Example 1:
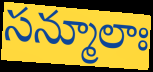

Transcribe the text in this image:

సన్మూలాః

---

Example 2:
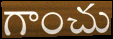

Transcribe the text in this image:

గాంచు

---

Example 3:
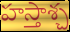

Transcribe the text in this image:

హస్తాశ్చ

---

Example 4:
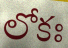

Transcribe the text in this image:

లోకః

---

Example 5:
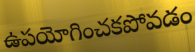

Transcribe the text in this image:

ఉపయోగించకపోవడం